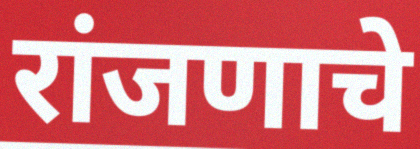
रांजणाचे